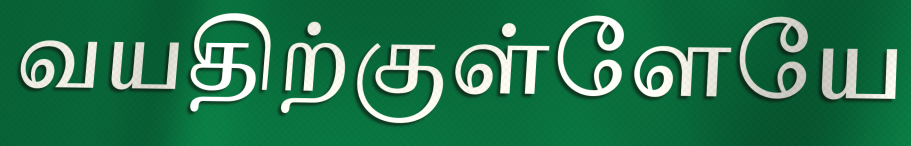
வயதிற்குள்ளேயே